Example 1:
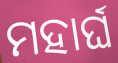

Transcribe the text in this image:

ମହାର୍ଘ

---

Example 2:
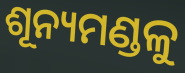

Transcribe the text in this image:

ଶୂନ୍ୟମଣ୍ଡଳୁ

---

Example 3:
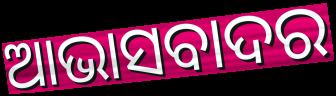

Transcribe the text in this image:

ଆଭାସବାଦର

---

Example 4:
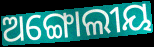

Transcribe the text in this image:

ଅଙ୍ଗୋଲୀୟ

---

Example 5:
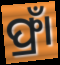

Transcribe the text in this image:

ଫ୍ରାଁ